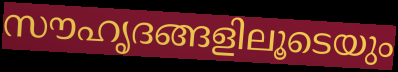
സൗഹൃദങ്ങളിലൂടെയും